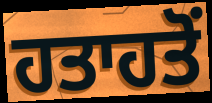
ਹਤਾਹਤੋਂ